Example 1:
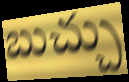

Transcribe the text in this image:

బుచ్చు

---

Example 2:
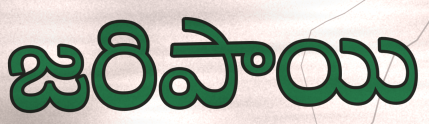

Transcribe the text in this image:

జరిపాయి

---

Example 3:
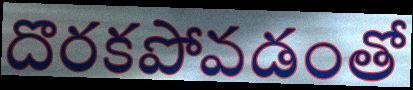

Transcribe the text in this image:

దొరకపోవడంతో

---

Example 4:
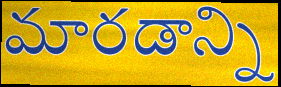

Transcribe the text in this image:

మారడాన్ని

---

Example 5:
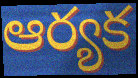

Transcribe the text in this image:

ఆర్యక